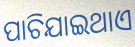
ପାଚିଯାଇଥାଏ